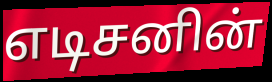
எடிசனின்